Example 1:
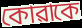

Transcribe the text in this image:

কোৱাকে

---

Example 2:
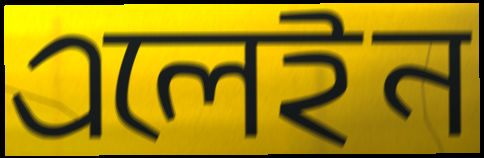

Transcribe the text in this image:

এলেইন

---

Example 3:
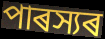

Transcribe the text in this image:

পাৰস্যৰ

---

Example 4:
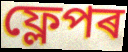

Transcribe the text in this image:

ফ্লেপৰ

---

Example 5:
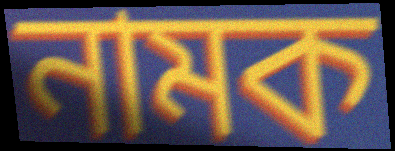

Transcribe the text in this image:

নামক